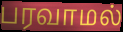
பரவாமல்